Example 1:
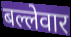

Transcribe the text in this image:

बल्लेवार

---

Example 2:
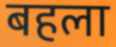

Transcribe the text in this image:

बहला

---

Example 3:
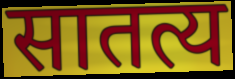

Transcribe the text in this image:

सातत्य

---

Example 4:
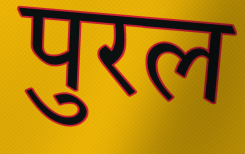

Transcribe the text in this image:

पुरल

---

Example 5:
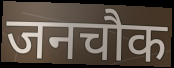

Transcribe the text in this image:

जनचौक